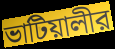
ভাটিয়ালীর